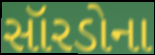
સૉરડોના